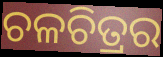
ଚଳଚିତ୍ରର